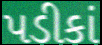
પડીકાં